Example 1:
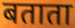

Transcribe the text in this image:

बताता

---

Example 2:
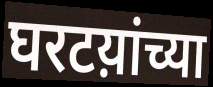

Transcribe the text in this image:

घरटय़ांच्या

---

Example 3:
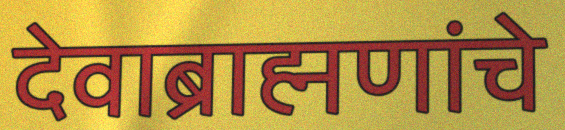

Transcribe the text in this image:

देवाब्राह्मणांचे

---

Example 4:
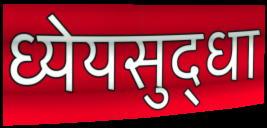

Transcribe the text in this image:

ध्येयसुद्धा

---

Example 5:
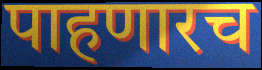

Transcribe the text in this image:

पाहणारच